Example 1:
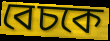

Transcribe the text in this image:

বেচকে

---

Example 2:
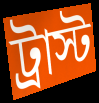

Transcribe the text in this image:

ট্রাস্ট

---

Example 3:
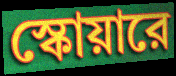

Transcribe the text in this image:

স্কোয়ারে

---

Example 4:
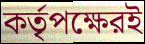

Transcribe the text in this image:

কর্তৃপক্ষেরই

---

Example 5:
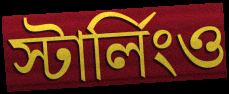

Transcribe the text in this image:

স্টার্লিংও